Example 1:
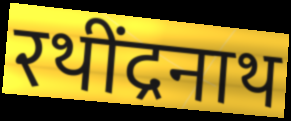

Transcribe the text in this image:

रथींद्रनाथ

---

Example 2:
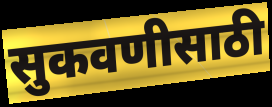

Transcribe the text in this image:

सुकवणीसाठी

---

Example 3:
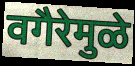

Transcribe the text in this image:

वगैरेमुळे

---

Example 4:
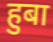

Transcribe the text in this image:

हुबा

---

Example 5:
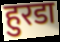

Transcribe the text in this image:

हुरडा